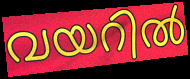
വയറിൽ